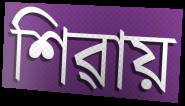
শিৱায়